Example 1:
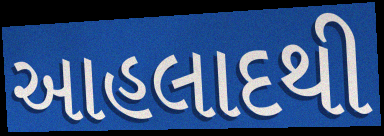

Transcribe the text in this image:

આહલાદથી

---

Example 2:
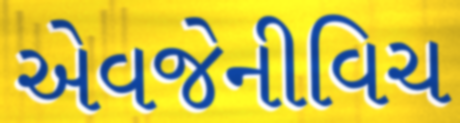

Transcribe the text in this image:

એવજેનીવિચ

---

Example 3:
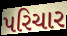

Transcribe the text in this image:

પરિચાર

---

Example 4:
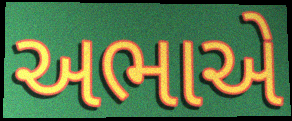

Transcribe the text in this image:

અભાએ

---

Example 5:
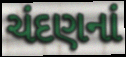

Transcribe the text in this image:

ચંદણનાં